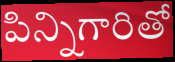
పిన్నిగారితో